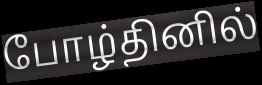
போழ்தினில்